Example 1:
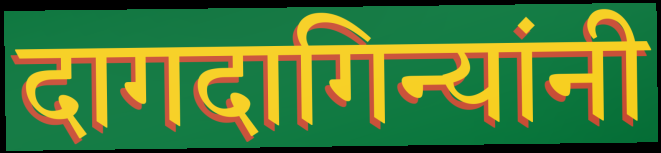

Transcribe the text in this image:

दागदागिन्यांनी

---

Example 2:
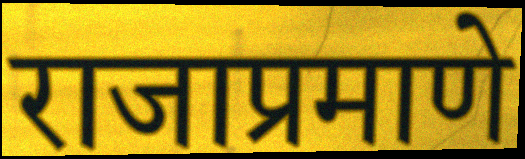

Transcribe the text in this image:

राजाप्रमाणे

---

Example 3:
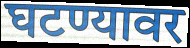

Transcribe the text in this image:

घटण्यावर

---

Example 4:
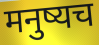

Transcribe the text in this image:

मनुष्यच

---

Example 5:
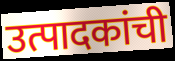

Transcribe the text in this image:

उत्पादकांची